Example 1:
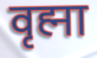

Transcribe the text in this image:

वृह्मा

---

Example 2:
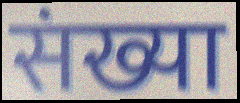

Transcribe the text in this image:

संख्या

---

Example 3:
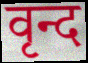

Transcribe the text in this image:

वृन्द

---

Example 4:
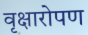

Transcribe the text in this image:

वृक्षारोपण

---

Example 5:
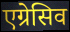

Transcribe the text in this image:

एग्रेसिव